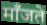
माँजते